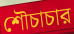
শৌচাচার